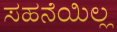
ಸಹನೆಯಿಲ್ಲ